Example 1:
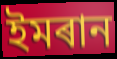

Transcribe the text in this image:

ইমৰান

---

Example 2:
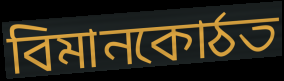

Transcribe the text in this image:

বিমানকোঠত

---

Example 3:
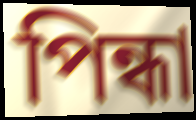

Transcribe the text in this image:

পিন্ধা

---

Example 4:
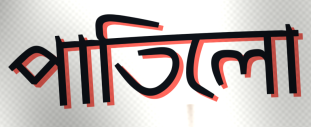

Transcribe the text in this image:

পাতিলো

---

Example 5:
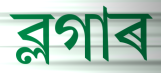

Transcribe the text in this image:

ব্লগাৰ